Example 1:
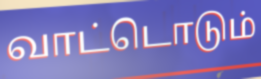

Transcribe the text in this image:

வாட்டொடும்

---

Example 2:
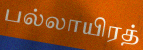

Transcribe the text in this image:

பல்லாயிரத்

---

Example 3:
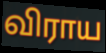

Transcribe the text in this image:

விராய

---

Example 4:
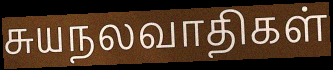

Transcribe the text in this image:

சுயநலவாதிகள்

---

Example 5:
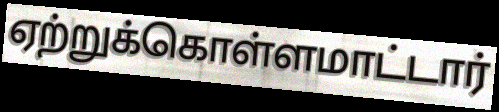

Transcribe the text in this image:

ஏற்றுக்கொள்ளமாட்டார்